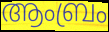
ആംബ്രം